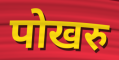
पोखरु